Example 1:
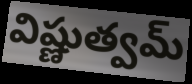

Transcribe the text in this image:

విష్ణుత్వమ్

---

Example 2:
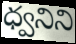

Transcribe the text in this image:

ధ్వనిని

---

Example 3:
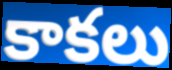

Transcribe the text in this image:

కాకలు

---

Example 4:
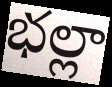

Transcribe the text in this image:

భల్లా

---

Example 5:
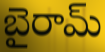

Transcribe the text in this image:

బైరామ్